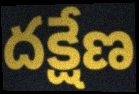
దక్షేణ